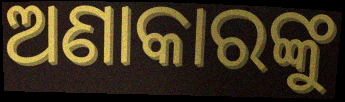
ଅଣାକାରଙ୍କୁ